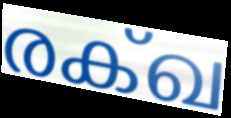
രക്ഖ